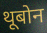
थूबोन